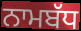
ਨਾਮਬੱਧ